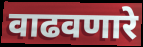
वाढवणारे